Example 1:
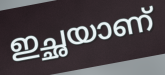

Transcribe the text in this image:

ഇച്ഛയാണ്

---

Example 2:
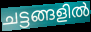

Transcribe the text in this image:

ചട്ടങ്ങളിൽ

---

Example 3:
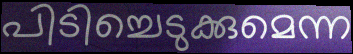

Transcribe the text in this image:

പിടിച്ചെടുക്കുമെന്ന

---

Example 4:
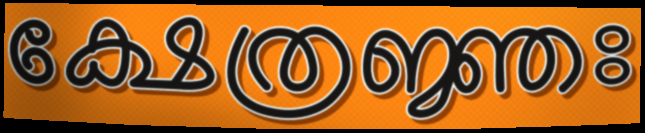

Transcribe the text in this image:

ക്ഷേത്രജ്ഞഃ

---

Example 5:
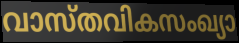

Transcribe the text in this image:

വാസ്തവികസംഖ്യാ